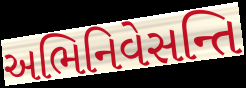
અભિનિવેસન્તિ